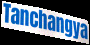
Tanchangya